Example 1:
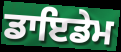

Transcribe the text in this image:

ਡਾਇਡੇਮ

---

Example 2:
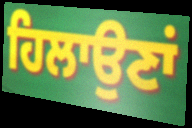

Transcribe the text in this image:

ਹਿਲਾਉਣਾਂ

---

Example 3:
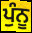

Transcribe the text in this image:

ਪੁੰਨੂ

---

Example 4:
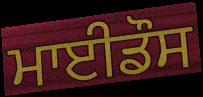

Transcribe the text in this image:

ਮਾਈਡੌਸ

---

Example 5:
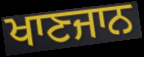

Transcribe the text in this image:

ਖਾਣਜਾਨ